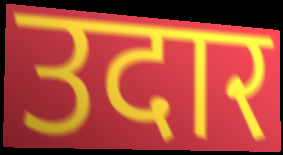
उदार